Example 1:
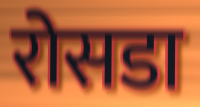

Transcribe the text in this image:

रोसडा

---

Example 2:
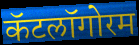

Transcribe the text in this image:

कॅटलॉगोरम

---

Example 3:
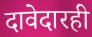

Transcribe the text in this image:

दावेदारही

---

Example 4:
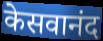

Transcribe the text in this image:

केसवानंद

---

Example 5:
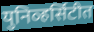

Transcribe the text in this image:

युनिव्हर्सिटीत